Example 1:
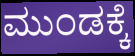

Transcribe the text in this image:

ಮುಂಡಕ್ಕೆ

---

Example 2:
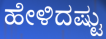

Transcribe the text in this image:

ಹೇಳಿದಷ್ಟು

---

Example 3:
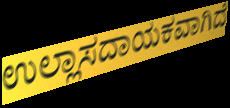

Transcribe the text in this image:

ಉಲ್ಲಾಸದಾಯಕವಾಗಿದೆ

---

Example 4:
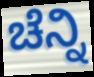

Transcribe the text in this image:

ಚೆನ್ನಿ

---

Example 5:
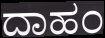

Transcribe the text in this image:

ದಾಹಂ